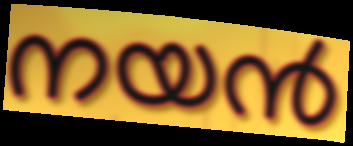
നയൻ